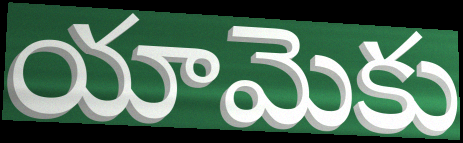
యామెకు